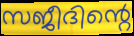
സജീദിന്റെ